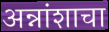
अन्नांशाचा